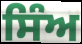
ਸਿੰਅ